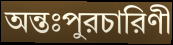
অন্তঃপুরচারিণী